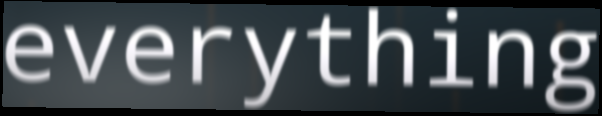
everything